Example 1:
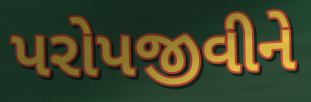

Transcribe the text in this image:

પરોપજીવીને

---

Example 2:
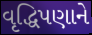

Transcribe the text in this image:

વૃદ્ધિપણાને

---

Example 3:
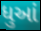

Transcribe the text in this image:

ધુઆં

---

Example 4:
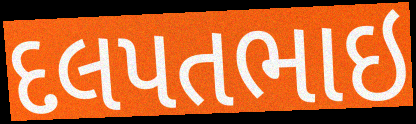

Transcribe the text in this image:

દલપતભાઇ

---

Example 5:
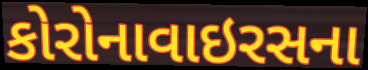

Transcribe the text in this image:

કોરોનાવાઇરસના